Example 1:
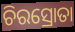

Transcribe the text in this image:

ଚିରସ୍ରୋତା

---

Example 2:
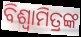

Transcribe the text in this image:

ବିଶ୍ଵାମିତ୍ରଙ୍କ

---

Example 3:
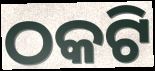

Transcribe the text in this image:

ଠକଟି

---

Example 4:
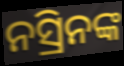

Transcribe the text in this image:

ନସ୍ରିନଙ୍କ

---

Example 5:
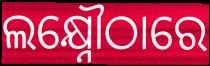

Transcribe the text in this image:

ଲକ୍ଷ୍ନୌଠାରେ